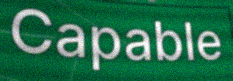
Capable